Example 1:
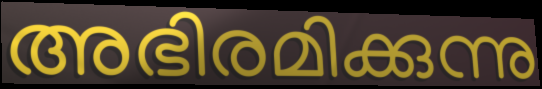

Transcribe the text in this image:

അഭിരമിക്കുന്നു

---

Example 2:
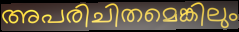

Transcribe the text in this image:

അപരിചിതമെങ്കിലും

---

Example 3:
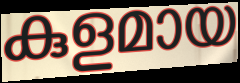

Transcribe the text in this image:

കുളമായ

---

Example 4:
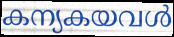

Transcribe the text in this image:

കന്യകയവൾ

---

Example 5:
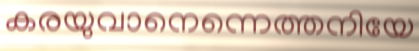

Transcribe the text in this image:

കരയുവാനെന്നെത്തനിയേ